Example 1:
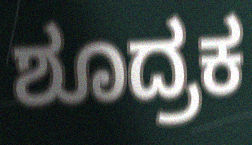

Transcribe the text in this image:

ಶೂದ್ರಕ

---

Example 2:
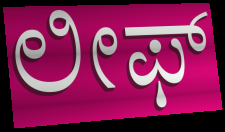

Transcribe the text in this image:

ಲೀಫ್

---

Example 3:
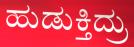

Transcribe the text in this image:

ಹುಡುಕ್ತಿದ್ರು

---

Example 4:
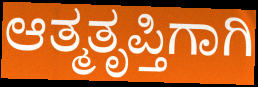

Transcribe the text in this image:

ಆತ್ಮತೃಪ್ತಿಗಾಗಿ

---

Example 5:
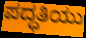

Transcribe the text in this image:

ಪದ್ಧತಿಯು